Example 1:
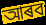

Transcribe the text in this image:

আৰব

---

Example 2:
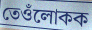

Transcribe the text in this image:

তেওঁলোকক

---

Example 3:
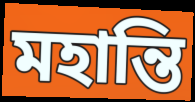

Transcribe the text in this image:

মহান্তি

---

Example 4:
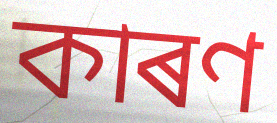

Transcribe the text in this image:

কাৰণ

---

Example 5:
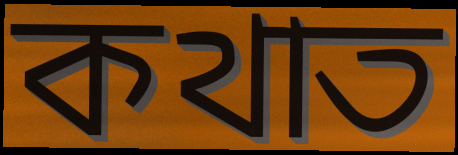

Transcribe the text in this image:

কথাত